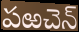
పఱచెన్